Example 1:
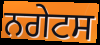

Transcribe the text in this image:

ਨਗੇਟਸ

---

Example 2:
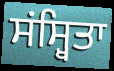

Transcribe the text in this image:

ਸਂਸ੍ਥਿਤਾ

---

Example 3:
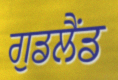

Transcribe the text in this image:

ਗੁਡਲੈਂਡ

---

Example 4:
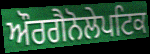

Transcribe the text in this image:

ਔਰਗੈਨੋਲੇਪਟਿਕ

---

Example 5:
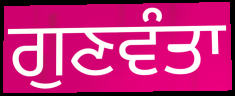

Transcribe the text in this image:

ਗੁਣਵੰਤਾ